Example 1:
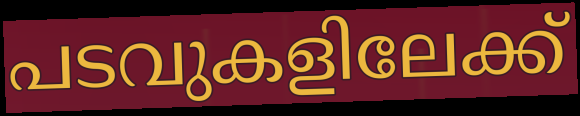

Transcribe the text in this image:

പടവുകളിലേക്ക്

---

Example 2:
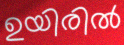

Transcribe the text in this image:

ഉയിരിൽ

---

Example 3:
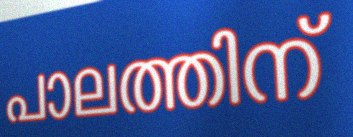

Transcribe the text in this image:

പാലത്തിന്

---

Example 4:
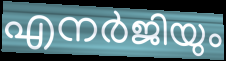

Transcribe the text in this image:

എനർജിയും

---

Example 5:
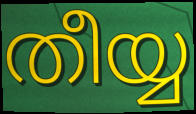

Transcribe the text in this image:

തീയ്യ